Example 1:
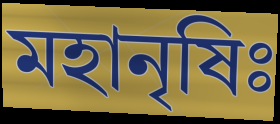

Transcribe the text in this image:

মহানৃষিঃ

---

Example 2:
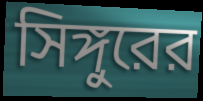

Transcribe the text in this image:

সিঙ্গুরের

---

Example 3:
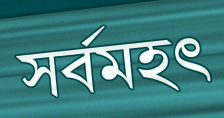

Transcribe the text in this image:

সর্বমহৎ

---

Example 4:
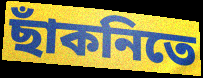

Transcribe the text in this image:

ছাঁকনিতে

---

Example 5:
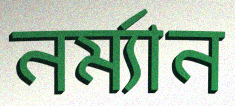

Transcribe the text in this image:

নর্ম্যান